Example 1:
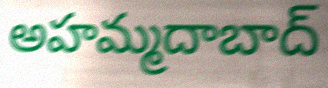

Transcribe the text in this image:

అహమ్మదాబాద్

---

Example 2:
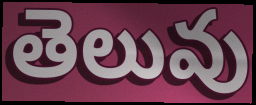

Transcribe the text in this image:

తెలువు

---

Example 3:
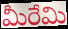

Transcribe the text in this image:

మీరేమి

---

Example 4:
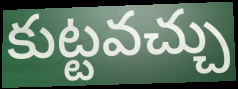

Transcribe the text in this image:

కుట్టవచ్చు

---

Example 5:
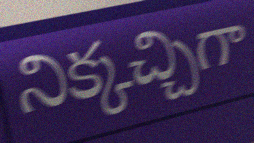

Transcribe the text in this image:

నిక్కచ్చిగా